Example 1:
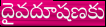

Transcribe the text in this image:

దైవదూషణకు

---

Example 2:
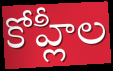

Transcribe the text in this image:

కోహ్లీల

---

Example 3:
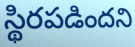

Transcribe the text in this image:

స్థిరపడిందని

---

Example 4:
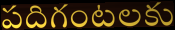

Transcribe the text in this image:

పదిగంటలకు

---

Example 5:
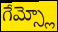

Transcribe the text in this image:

గేమ్స్లో